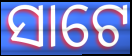
ସାଟେ